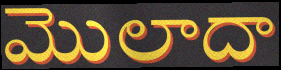
మొలాదా